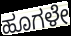
ಹೂಗಳೇ